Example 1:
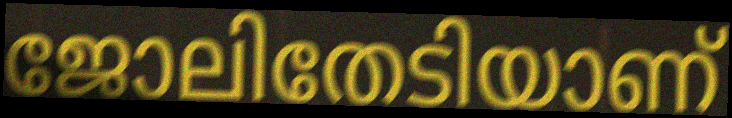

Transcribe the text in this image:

ജോലിതേടിയാണ്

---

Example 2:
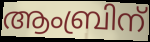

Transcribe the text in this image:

ആംബ്രിന്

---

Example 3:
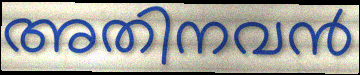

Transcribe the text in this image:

അതിനവൻ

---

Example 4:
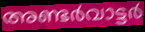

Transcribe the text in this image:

അണ്ടർവാട്ടർ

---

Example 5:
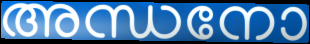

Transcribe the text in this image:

അന്ധനോ